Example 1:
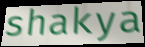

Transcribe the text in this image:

shakya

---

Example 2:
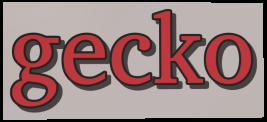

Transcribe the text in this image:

gecko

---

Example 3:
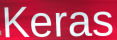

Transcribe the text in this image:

Keras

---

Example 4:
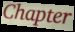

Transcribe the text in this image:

Chapter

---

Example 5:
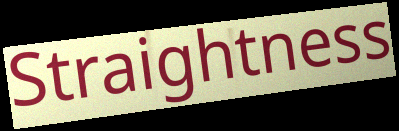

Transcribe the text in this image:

Straightness